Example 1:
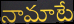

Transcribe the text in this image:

నామాటే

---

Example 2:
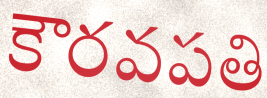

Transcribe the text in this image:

కౌరవపతి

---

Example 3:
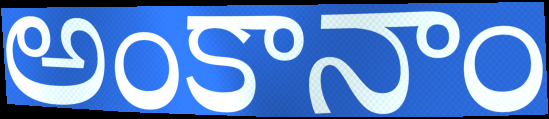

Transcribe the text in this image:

అంకానాం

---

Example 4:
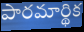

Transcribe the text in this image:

పారమార్థిక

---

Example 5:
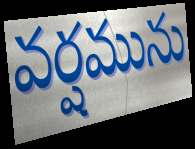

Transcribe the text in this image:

వర్షమును